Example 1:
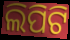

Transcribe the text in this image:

ଲିପିଟି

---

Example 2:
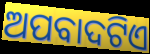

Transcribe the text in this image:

ଅପବାଦଟିଏ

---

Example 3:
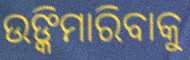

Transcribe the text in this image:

ଉଙ୍କିମାରିବାକୁ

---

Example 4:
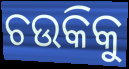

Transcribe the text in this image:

ଚଉକିକୁ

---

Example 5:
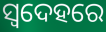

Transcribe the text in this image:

ସ୍ଵଦେହରେ